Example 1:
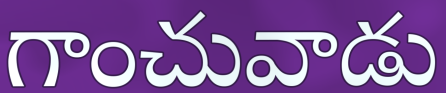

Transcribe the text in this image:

గాంచువాడు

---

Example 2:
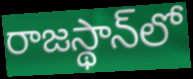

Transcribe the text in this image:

రాజస్థాన్‌లో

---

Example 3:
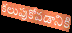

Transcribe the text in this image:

కలుపుకోవడానికి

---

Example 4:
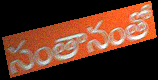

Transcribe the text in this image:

సంతానంతో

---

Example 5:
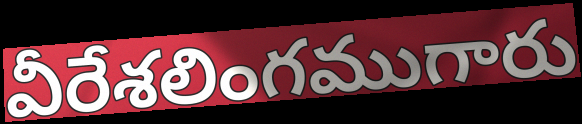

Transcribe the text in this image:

వీరేశలింగముగారు